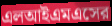
এলআইএমএসের